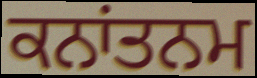
ਕਨਾਂਤਨਮ